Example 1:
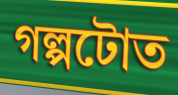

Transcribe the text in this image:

গল্পটোত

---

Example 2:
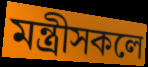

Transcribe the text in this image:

মন্ত্ৰীসকলে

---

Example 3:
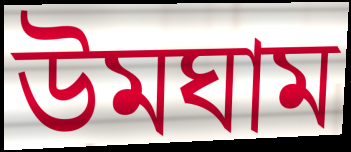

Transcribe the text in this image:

উমঘাম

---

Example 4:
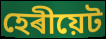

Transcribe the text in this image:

হেৰীয়েট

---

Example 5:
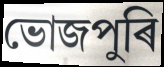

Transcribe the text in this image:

ভোজপুৰি